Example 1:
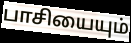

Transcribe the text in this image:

பாசியையும்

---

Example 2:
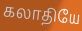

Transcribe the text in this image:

கலாதியே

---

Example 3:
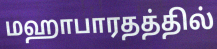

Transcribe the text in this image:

மஹாபாரதத்தில்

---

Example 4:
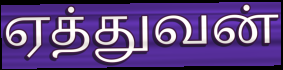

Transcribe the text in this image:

ஏத்துவன்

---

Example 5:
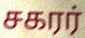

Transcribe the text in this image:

சகரர்